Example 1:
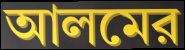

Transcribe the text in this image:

আলমের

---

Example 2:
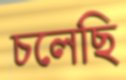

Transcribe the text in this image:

চলেছি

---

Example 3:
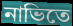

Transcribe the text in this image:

নাভিতে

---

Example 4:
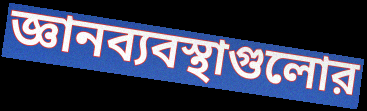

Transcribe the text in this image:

জ্ঞানব্যবস্থাগুলোর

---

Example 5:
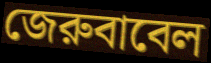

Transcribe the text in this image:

জেরুবাবেল